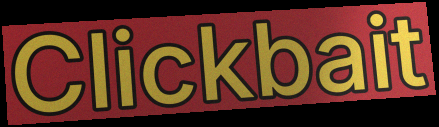
Clickbait